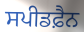
ਸਪੀਡਫ਼ੈਨ